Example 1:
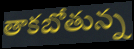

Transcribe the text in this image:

తాకబోతున్న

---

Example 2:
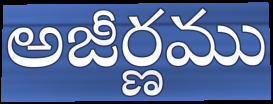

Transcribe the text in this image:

అజీర్ణము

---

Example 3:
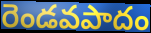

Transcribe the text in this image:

రెండవపాదం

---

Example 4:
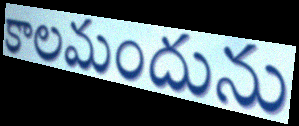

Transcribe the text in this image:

కాలమందును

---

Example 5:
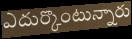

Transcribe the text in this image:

ఎదుర్కొంటున్నారు